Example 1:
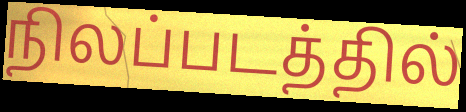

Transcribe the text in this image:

நிலப்படத்தில்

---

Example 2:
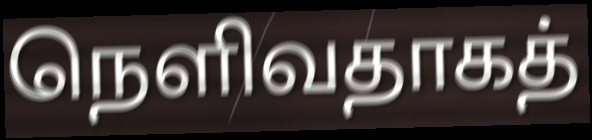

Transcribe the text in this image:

நெளிவதாகத்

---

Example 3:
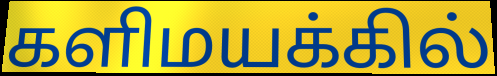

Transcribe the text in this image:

களிமயக்கில்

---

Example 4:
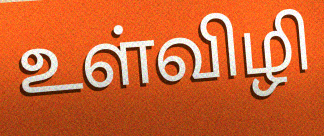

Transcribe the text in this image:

உள்விழி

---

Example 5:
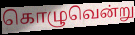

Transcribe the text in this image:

கொழுவென்று